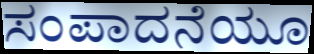
ಸಂಪಾದನೆಯೂ